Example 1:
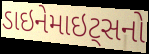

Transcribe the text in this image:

ડાઇનેમાઇટ્સનો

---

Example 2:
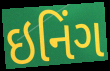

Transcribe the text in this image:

ઇનિંગ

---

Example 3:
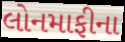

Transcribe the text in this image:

લોનમાફીના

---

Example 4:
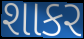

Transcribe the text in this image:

શાકર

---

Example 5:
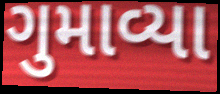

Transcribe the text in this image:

ગુમાવ્યા